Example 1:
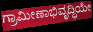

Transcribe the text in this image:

ಗ್ರಾಮೀಣಾಭಿವೃದ್ಧಿಯೇ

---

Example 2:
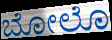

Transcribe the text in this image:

ಬೋಲೊ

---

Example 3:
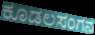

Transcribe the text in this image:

ಕೂಡಲಸಂಗನ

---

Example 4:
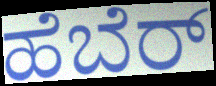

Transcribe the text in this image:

ಹೆಬೆರ್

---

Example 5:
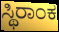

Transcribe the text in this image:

ಸ್ಥಿರಾಂಕ